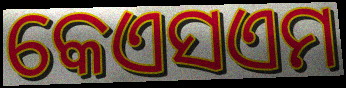
କେଏସଏମ